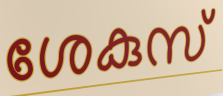
ശേകുസ്